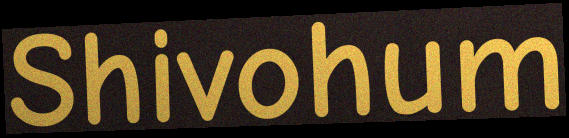
Shivohum